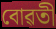
বোৱতী